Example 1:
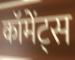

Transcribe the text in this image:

कॉमेंट्स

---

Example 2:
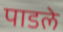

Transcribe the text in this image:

पाडले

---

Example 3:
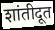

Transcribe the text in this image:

शांतीदूत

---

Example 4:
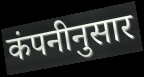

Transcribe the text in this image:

कंपनीनुसार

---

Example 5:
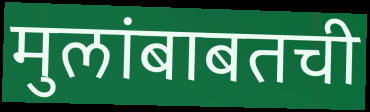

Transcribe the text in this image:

मुलांबाबतची